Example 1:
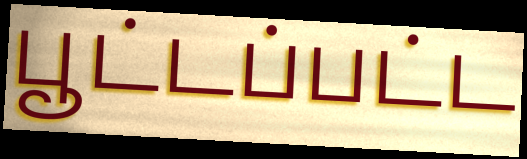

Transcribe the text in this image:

பூட்டப்பட்ட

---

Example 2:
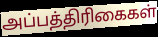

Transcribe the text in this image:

அப்பத்திரிகைகள்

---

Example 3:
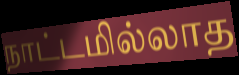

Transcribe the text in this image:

நாட்டமில்லாத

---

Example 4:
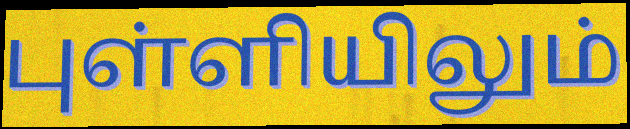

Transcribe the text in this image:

புள்ளியிலும்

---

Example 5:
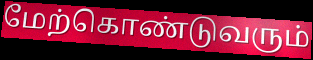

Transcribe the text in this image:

மேற்கொண்டுவரும்